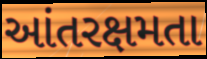
આંતરક્ષમતા